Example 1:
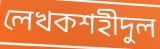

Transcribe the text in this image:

লেখকশহীদুল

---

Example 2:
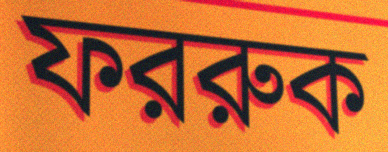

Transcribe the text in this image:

ফররুক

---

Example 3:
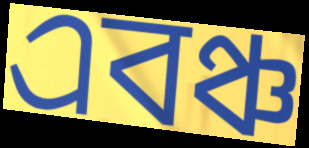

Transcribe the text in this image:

এবঞ্চ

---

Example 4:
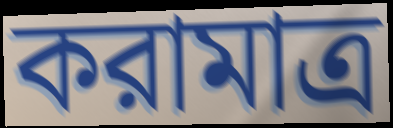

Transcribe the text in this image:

করামাত্র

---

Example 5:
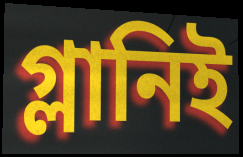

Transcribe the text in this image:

গ্লানিই